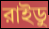
রাইডু